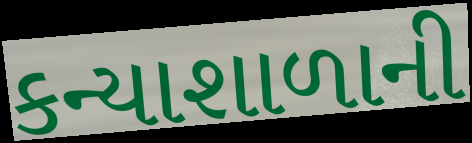
કન્યાશાળાની